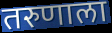
तरुणाला